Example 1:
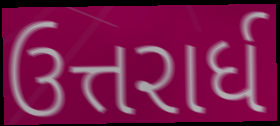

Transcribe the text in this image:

ઉત્તરાર્ધ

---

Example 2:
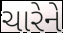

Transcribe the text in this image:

ચારેને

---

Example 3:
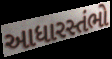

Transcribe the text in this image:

આધારસ્તંભો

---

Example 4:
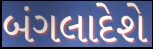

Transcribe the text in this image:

બંગલાદેશે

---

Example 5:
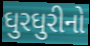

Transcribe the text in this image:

ઘુરઘુરીનો